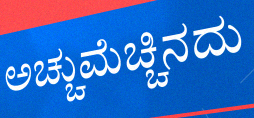
ಅಚ್ಚುಮೆಚ್ಚಿನದು